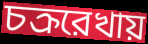
চক্ররেখায়